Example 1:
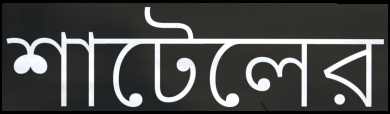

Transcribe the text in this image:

শাটেলের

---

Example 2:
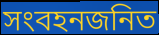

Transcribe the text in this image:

সংবহনজনিত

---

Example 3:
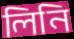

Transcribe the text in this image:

লিনি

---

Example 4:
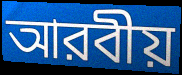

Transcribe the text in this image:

আরবীয়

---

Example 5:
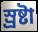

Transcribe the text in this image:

স্র্রষ্টা